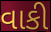
વાકી